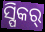
ସ୍ପିକର୍